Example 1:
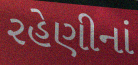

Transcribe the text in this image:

રહેણીનાં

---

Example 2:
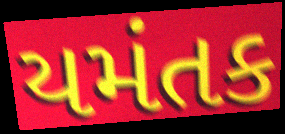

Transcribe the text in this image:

યમંતક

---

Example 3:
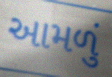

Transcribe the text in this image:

આમળું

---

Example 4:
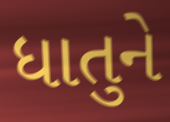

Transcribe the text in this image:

ધાતુને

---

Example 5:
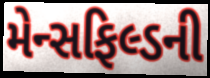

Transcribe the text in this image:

મેન્સફિલ્ડની